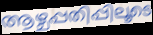
ആഴ്ചപ്പതിപ്പിലൂടെ